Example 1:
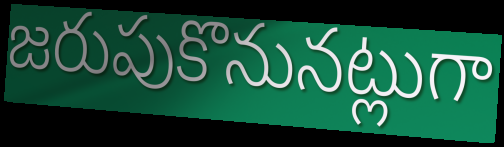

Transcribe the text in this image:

జరుపుకొనునట్లుగా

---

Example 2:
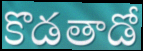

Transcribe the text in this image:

కొడతాడో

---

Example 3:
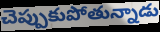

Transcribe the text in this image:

చెప్పుకుపోతున్నాడు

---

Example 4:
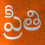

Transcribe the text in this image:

ప్రీతి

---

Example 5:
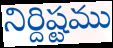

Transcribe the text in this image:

నిర్దిష్టము